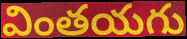
వింతయగు